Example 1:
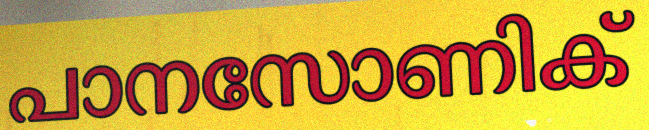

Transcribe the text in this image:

പാനസോണിക്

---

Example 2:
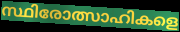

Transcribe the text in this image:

സ്ഥിരോത്സാഹികളെ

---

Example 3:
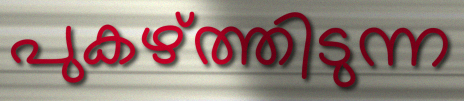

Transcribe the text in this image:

പുകഴ്ത്തിടുന്ന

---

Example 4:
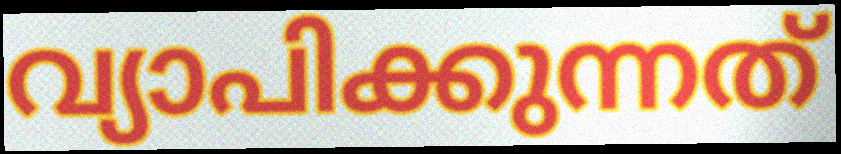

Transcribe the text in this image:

വ്യാപിക്കുന്നത്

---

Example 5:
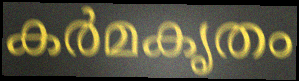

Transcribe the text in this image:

കർമകൃതം